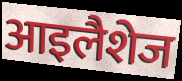
आइलैशेज